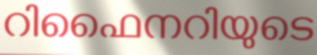
റിഫൈനറിയുടെ